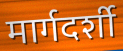
मार्गदर्शी